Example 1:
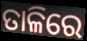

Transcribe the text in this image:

ତାଳିରେ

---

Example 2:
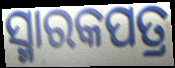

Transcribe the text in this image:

ସ୍ମାରକପତ୍ର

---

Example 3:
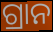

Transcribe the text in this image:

ଗ୍ରାନ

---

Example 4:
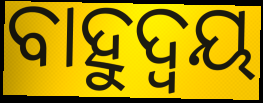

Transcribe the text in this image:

ବାହୁଦ୍ୱୟ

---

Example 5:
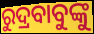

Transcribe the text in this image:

ରୁଦ୍ରବାବୁଙ୍କୁ